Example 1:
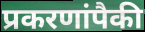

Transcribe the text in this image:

प्रकरणांपैकी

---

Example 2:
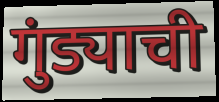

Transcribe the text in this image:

गुंड्याची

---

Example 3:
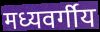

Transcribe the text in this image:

मध्यवर्गीय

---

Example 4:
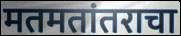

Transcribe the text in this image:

मतमतांतराचा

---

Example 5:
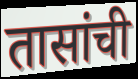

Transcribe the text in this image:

तासांची